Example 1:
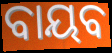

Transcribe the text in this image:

ବାୟବ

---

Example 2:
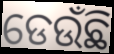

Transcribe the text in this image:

ଡେଉଁଛି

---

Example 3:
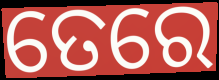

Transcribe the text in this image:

ତେରେ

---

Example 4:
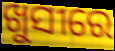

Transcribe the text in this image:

ଖୁସୀରେ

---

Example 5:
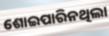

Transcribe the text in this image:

ଶୋଇପାରିନଥିଲା